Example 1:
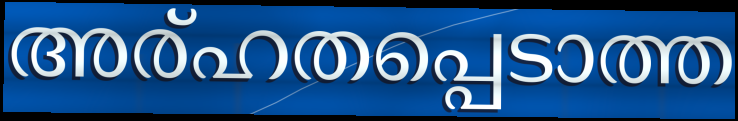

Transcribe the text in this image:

അര്ഹതപ്പെടാത്ത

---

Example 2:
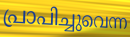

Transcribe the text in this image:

പ്രാപിച്ചുവെന്ന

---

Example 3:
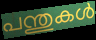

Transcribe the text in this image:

പന്തുകൾ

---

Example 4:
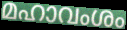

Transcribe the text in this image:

മഹാവംശം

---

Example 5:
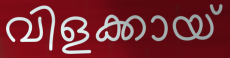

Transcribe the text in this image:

വിളക്കായ്